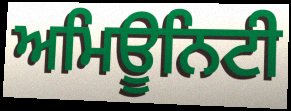
ਅਮਿਊਨਿਟੀ